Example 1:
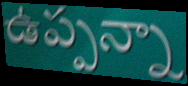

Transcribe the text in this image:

ఉప్పన్నా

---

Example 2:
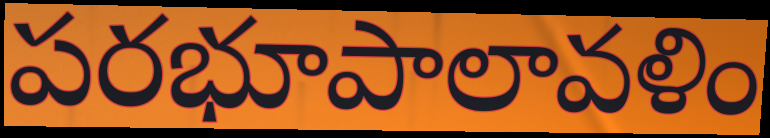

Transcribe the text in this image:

పరభూపాలావళిం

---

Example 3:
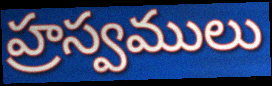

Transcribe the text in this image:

హ్రస్వములు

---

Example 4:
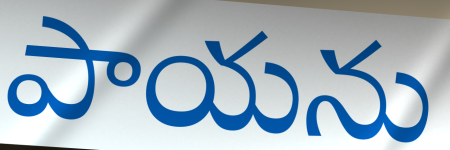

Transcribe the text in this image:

పాయను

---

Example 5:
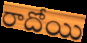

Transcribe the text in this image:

రాదోయి